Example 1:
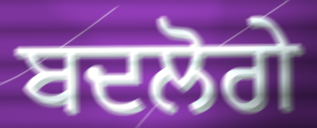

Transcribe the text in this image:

ਬਦਲੋਗੇ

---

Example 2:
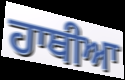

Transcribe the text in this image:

ਹਾਥੀਆ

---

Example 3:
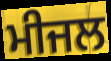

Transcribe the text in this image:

ਮੀਜਲ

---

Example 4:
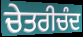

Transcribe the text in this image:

ਚੇਤਰੀਚੰਦ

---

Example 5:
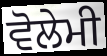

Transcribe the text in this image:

ਵੋਲੇਮੀ